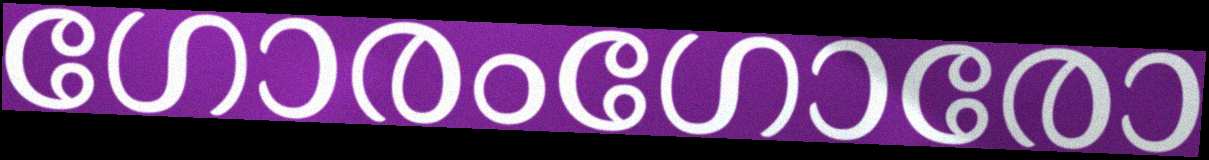
ഗോരംഗോരോ